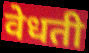
वेधती